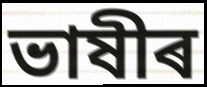
ভাষীৰ